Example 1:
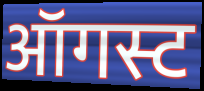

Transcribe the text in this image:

ऑगस्ट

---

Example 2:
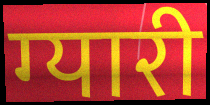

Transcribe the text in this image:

ग्यारी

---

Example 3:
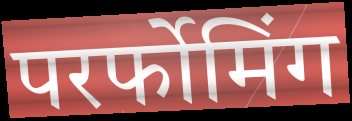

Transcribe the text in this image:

परर्फोमिंग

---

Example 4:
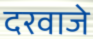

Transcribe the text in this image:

दरवाजे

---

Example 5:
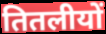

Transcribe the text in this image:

तितलीयों